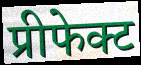
प्रीफेक्ट